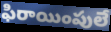
ఫిరాయింపులే